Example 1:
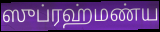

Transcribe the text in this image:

ஸுப்ரஹ்மண்ய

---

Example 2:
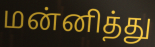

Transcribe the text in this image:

மன்னித்து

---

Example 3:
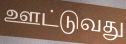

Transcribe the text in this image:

ஊட்டுவது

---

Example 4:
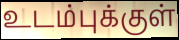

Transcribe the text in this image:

உடம்புக்குள்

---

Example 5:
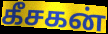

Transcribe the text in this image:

கீசகன்